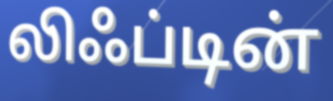
லிஃப்டின்